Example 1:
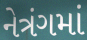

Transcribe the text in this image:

નેત્રંગમાં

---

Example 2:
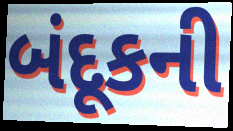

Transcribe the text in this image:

બંદૂકની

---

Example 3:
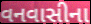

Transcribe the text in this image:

વનવાસીના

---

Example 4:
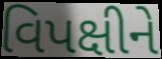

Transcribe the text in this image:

વિપક્ષીને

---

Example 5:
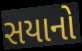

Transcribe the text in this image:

સયાનો